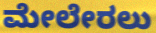
ಮೇಲೇರಲು